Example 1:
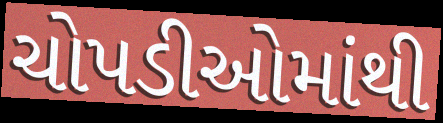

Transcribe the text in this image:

ચોપડીઓમાંથી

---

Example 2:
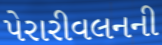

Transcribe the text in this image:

પેરારીવલનની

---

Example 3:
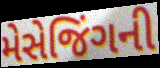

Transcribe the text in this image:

મેસેજિંગની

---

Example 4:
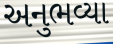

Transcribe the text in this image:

અનુભવ્યા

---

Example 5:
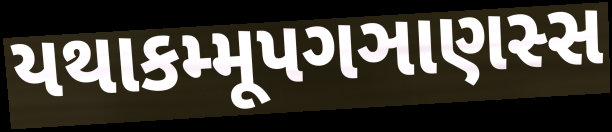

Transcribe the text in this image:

યથાકમ્મૂપગઞાણસ્સ